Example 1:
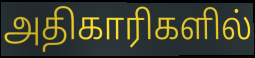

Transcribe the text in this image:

அதிகாரிகளில்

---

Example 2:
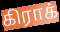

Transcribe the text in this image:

கிராக்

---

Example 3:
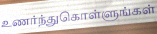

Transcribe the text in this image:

உணர்ந்துகொள்ளுங்கள்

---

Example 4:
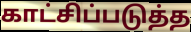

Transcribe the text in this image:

காட்சிப்படுத்த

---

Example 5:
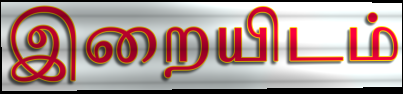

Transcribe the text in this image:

இறையிடம்